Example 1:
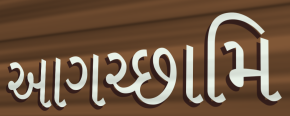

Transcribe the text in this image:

આગચ્છામિ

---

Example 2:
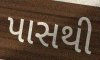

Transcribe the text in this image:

પાસથી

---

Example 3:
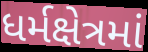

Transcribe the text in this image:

ધર્મક્ષેત્રમાં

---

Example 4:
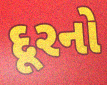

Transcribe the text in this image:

દૂરનો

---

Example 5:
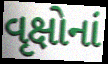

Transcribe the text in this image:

વૃક્ષોનાં